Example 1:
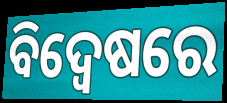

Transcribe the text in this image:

ବିଦ୍ଵେଷରେ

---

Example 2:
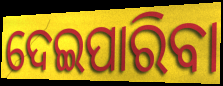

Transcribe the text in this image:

ଦେଇପାରିବା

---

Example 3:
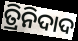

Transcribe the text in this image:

ତ୍ରିନିଦାଦ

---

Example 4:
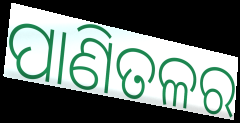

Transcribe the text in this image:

ପାଣିତଳର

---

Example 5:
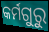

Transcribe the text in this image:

କର୍ମଗୁରୁ